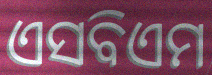
ଏସବିଏମ